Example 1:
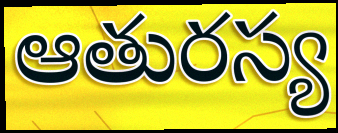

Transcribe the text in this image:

ఆతురస్య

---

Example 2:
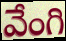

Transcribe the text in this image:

వేంగి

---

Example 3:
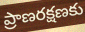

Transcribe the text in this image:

ప్రాణరక్షణకు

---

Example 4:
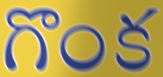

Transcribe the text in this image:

గొంక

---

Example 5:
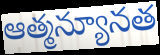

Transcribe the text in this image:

ఆత్మన్యూనత